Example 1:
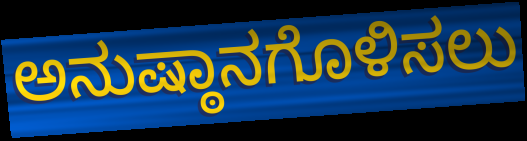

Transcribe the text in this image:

ಅನುಷ್ಠಾನಗೊಳಿಸಲು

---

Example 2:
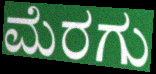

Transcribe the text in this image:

ಮೆರಗು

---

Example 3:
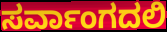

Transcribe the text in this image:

ಸರ್ವಾಂಗದಲಿ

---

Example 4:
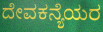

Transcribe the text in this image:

ದೇವಕನ್ಯೆಯರ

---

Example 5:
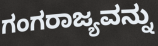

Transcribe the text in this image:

ಗಂಗರಾಜ್ಯವನ್ನು